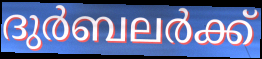
ദുർബലർക്ക്